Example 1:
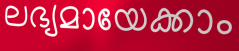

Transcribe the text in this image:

ലഭ്യമായേക്കാം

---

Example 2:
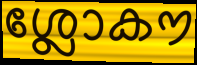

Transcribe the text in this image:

ശ്ലോകൗ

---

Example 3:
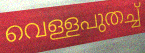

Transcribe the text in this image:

വെള്ളപുതച്ച്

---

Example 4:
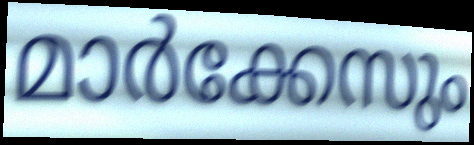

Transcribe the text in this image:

മാർക്കേസും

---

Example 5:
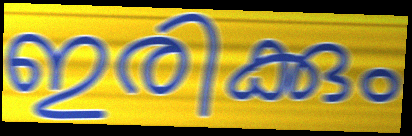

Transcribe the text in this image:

ഇരിക്കും